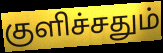
குளிச்சதும்